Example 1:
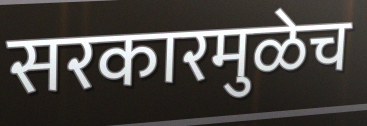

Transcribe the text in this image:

सरकारमुळेच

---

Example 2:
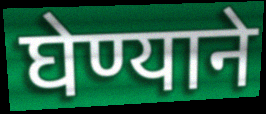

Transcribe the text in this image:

घेण्याने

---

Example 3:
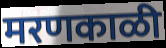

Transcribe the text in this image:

मरणकाळी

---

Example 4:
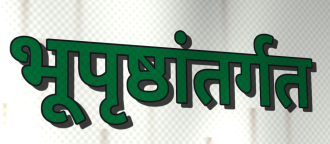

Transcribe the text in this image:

भूपृष्ठांतर्गत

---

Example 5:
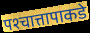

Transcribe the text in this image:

पश्चात्तापाकडे